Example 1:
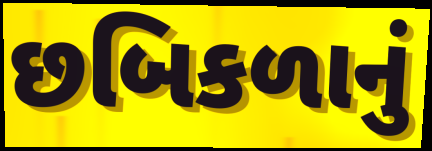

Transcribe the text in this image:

છબિકળાનું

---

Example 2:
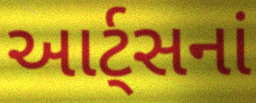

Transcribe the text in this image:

આર્ટ્સનાં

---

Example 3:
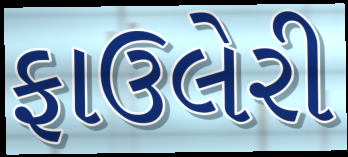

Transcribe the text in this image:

ફાઉલેરી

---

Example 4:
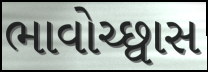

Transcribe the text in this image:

ભાવોચ્છ્વાસ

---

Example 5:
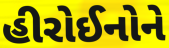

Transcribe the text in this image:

હીરોઈનોને